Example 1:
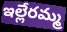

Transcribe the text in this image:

ఇల్లేరమ్మ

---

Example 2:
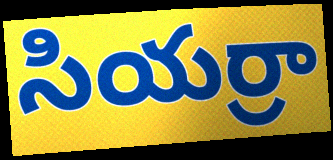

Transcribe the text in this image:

సియర్రా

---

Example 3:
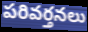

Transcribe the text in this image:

పరివర్తనలు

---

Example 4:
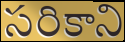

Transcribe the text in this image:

సరికాని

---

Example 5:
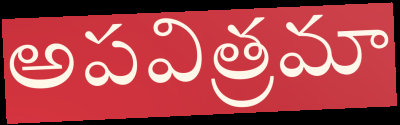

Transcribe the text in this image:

అపవిత్రమా